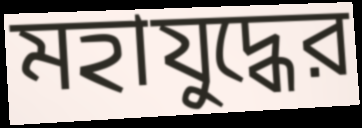
মহাযুদ্ধের